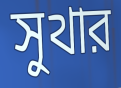
সুথার